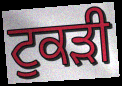
ਟੁਕਡ਼ੀ